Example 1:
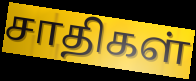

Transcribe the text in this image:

சாதிகள்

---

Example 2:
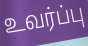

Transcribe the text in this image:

உவர்ப்பு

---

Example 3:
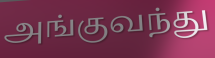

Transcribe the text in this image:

அங்குவந்து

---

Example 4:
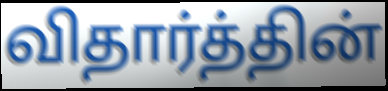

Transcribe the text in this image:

விதார்த்தின்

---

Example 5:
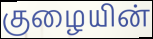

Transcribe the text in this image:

குழையின்